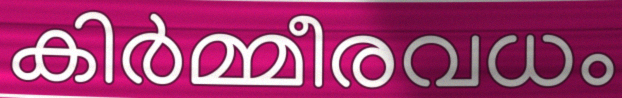
കിർമ്മീരവധം